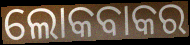
ଲୋକବାକର